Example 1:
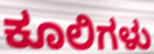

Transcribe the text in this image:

ಕೂಲಿಗಳು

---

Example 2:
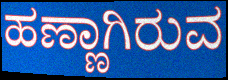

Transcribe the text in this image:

ಹಣ್ಣಾಗಿರುವ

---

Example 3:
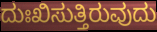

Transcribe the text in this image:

ದುಃಖಿಸುತ್ತಿರುವುದು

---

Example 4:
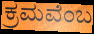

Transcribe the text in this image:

ಕ್ರಮವೆಂಬ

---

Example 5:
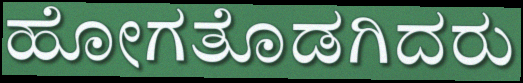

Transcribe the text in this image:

ಹೋಗತೊಡಗಿದರು